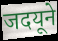
जदयूने